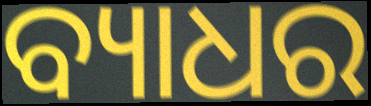
ବ୍ୟାଧର